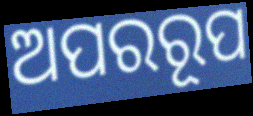
ଅପରରୂପ